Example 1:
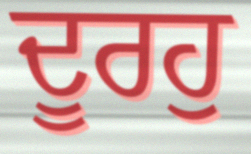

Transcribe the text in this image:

ਦੂਰਹੁ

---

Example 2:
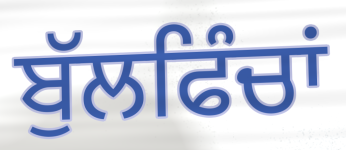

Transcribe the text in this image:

ਬੁੱਲਫਿੰਚਾਂ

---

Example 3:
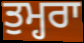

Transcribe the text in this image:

ਤੁਮ੍ਹਰਾ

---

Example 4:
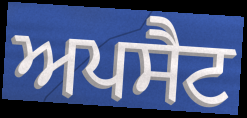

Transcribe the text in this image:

ਅਪਸੈਟ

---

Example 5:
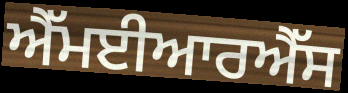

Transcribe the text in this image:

ਐੱਮਈਆਰਐੱਸ